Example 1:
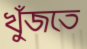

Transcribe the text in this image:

খুঁজতে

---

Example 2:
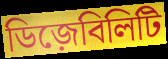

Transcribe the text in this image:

ডিজ়েবিলিটি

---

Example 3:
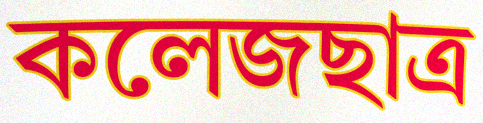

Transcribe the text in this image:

কলেজছাত্র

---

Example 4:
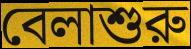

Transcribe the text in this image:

বেলাশুরু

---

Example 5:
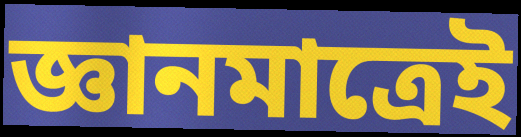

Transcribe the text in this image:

জ্ঞানমাত্রেই